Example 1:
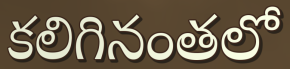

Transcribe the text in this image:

కలిగినంతలో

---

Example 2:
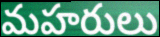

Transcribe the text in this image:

మహరులు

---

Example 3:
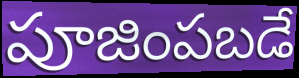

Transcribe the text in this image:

పూజింపబడే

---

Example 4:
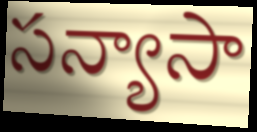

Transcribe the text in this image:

సన్యాసా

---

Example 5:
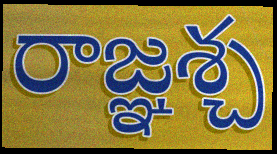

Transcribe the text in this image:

రాజ్ఞశ్చ